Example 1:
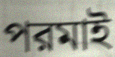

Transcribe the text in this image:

পরমাই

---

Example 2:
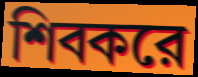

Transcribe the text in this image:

শিবকরে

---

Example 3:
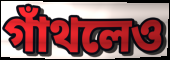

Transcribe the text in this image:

গাঁথলেও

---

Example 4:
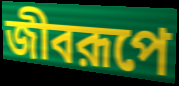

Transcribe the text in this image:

জীবরূপে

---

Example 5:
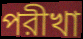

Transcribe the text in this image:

পরীখা